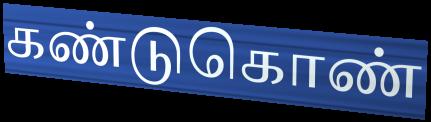
கண்டுகொண்